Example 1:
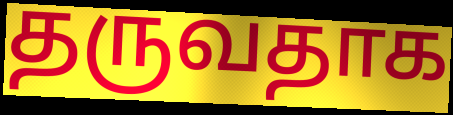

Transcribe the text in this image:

தருவதாக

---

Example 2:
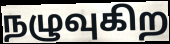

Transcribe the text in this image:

நழுவுகிற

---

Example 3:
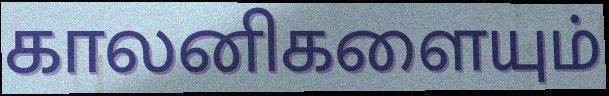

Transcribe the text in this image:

காலனிகளையும்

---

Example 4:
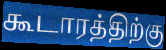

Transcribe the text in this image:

கூடாரத்திற்கு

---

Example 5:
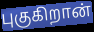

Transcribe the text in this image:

புகுகிறான்